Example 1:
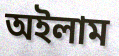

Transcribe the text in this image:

অইলাম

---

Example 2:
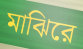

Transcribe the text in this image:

মাঝিরে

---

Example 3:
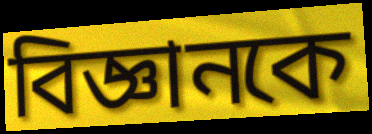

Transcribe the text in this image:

বিজ্ঞানকে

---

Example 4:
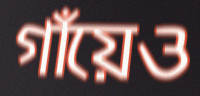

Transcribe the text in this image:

গাঁয়েও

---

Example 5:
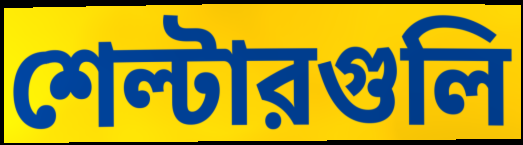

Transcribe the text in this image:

শেল্টারগুলি